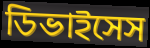
ডিভাইসেস